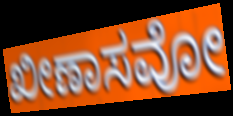
ಖೀಣಾಸವೋ